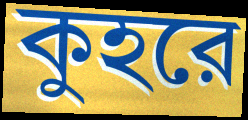
কুহরে